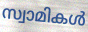
സ്വാമികൾ